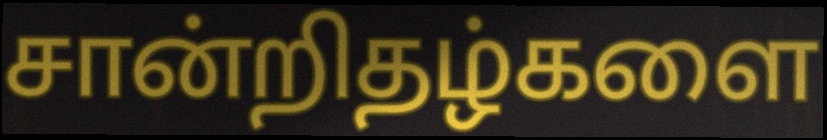
சான்றிதழ்களை